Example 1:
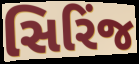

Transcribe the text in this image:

સિરિંજ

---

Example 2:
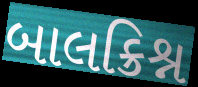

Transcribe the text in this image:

બાલક્રિશ્ન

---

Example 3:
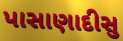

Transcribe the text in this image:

પાસાણાદીસુ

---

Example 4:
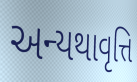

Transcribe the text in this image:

અન્યથાવૃત્તિ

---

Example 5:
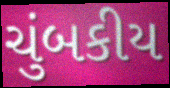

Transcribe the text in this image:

ચુંબકીય